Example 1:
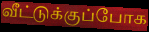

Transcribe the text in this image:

வீட்டுக்குப்போக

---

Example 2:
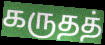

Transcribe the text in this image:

கருதத்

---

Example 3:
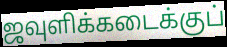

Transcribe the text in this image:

ஜவுளிக்கடைக்குப்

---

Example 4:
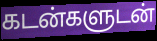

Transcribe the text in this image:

கடன்களுடன்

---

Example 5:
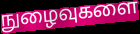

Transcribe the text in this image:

நுழைவுகளை